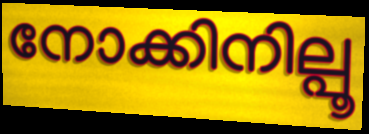
നോക്കിനില്പൂ